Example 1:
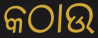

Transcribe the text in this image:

କଠାଉ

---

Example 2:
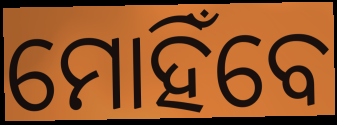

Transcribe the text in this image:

ମୋହିଁବେ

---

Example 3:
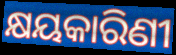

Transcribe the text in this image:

କ୍ଷୟକାରିଣୀ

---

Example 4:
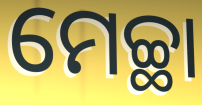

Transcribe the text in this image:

ମେଚ୍ଛା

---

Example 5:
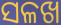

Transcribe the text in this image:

ସଳଖ